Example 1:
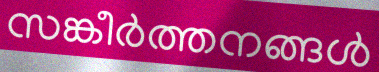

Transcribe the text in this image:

സങ്കീർത്തനങ്ങൾ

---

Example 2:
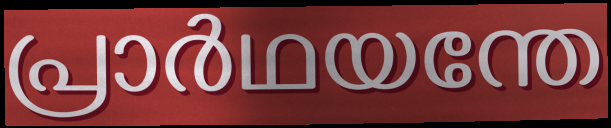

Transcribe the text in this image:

പ്രാർഥയന്തേ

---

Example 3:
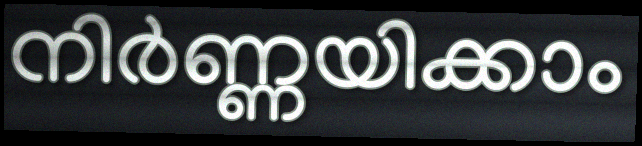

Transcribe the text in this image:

നിർണ്ണയിക്കാം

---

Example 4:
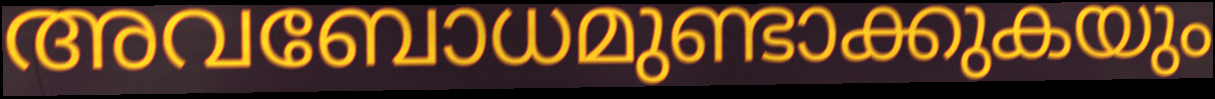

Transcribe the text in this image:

അവബോധമുണ്ടാക്കുകയും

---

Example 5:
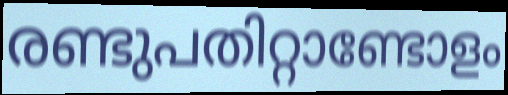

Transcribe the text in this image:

രണ്ടുപതിറ്റാണ്ടോളം